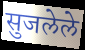
सुजलेले